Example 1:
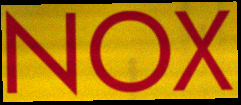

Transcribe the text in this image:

NOX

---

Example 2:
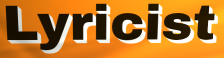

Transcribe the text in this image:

Lyricist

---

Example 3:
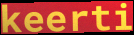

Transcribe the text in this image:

keerti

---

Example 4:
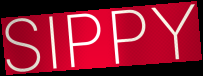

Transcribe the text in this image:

SIPPY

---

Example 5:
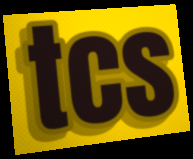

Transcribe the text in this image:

tcs